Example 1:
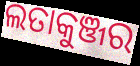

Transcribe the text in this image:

ଲତାକୁଞ୍ଜର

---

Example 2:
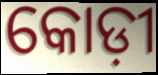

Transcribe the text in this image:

କୋଡ଼ୀ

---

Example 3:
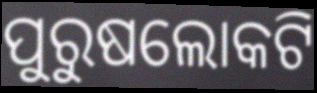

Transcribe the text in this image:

ପୁରୁଷଲୋକଟି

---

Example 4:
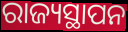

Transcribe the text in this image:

ରାଜ୍ୟସ୍ଥାପନ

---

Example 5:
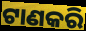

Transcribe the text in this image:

ଟାଣକରି